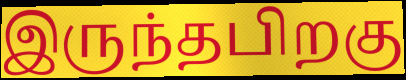
இருந்தபிறகு